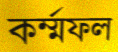
কর্ম্মফল